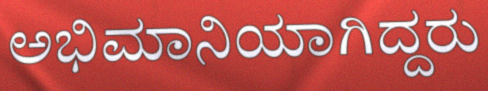
ಅಭಿಮಾನಿಯಾಗಿದ್ದರು